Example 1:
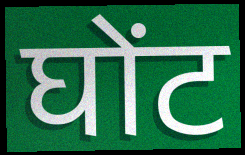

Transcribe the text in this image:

घोंट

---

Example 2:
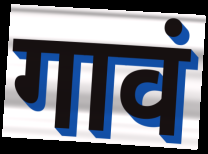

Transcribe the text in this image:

गावं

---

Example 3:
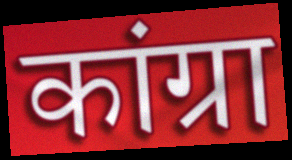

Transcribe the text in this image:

कांग्रा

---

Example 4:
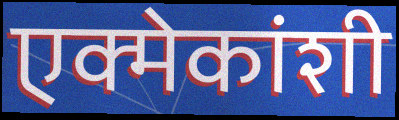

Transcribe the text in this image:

एक्मेकांशी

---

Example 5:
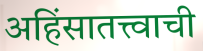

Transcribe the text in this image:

अहिंसातत्त्वाची